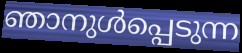
ഞാനുൾപ്പെടുന്ന